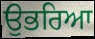
ਉਭਰਿਆ